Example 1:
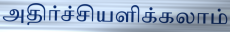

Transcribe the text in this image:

அதிர்ச்சியளிக்கலாம்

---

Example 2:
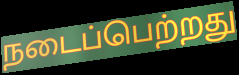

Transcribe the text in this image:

நடைப்பெற்றது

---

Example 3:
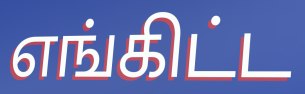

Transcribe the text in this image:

எங்கிட்ட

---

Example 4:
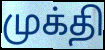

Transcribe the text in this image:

முக்தி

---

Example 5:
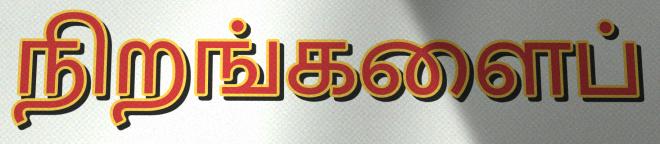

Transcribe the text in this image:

நிறங்களைப்